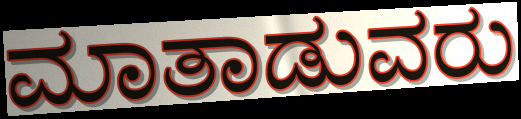
ಮಾತಾಡುವರು